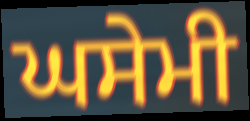
ਘਸੇਮੀ